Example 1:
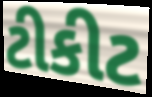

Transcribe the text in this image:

ટીકીટ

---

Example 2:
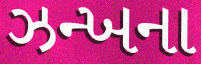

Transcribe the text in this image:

ઝન્ખના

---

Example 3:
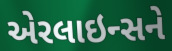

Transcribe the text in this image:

એરલાઇન્સને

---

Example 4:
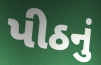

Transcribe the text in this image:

પીઠનું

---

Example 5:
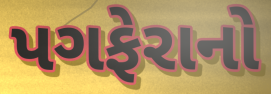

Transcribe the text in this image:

પગફેરાનો